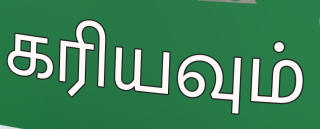
கரியவும்